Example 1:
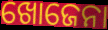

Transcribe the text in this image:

ଖୋଜେନା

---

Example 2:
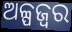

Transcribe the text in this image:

ଅଳ୍ପଜ୍ଵର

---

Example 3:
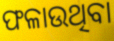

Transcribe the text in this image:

ଫଳାଉଥିବା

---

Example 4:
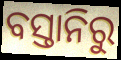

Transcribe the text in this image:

ବସ୍ତାନିରୁ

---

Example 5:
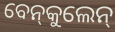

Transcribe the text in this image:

ବେନ୍‍କୁଲେନ୍